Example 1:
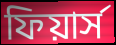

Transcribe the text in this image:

ফিয়ার্স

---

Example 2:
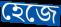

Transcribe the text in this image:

হেজে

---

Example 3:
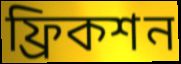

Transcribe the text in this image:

ফ্রিকশন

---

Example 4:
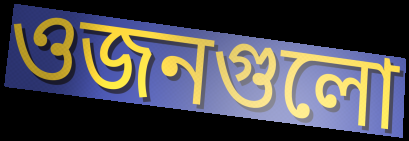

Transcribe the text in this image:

ওজনগুলো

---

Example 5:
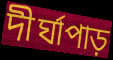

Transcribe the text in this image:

দীর্ঘাপাড়